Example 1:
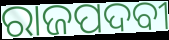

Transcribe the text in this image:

ରାଜପଦବୀ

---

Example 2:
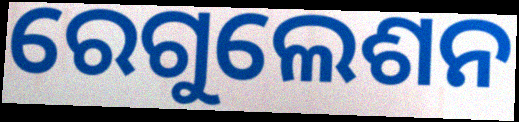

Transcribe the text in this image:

ରେଗୁଲେଶନ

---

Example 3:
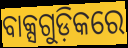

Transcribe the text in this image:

ବାକ୍ସଗୁଡ଼ିକରେ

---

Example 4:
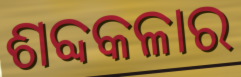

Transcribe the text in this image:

ଶବ୍ଦକଳାର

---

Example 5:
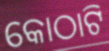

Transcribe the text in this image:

କୋଠାଟି